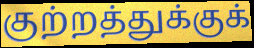
குற்றத்துக்குக்